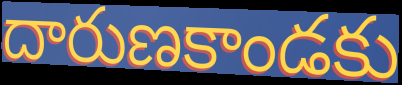
దారుణకాండకు